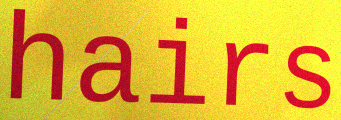
hairs